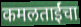
कमलताईंचा